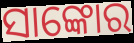
ସାଙ୍କୋର